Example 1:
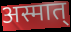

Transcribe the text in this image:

अस्मात्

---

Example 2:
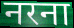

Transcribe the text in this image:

नरना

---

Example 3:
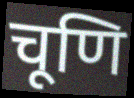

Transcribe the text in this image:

चूणि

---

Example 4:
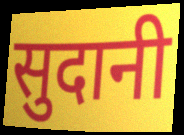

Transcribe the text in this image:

सुदानी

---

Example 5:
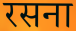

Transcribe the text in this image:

रसना